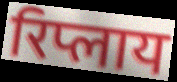
रिप्लाय